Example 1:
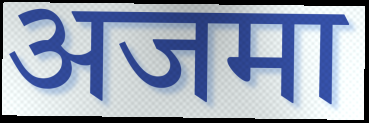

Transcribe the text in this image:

अजमा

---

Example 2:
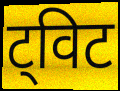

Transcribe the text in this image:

ट्विट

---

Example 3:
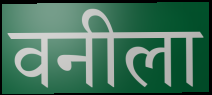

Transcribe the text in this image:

वनीला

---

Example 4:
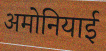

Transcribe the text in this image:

अमोनियाई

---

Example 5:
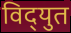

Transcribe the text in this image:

विद्‌युत